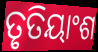
ତୃତିୟାଂଶ